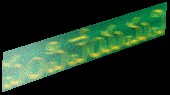
పంపివేయమని